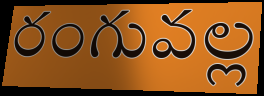
రంగువల్ల